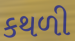
કથળી